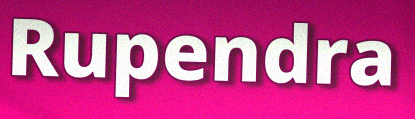
Rupendra